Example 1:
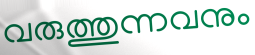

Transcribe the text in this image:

വരുത്തുന്നവനും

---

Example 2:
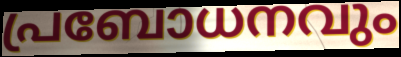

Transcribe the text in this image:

പ്രബോധനവും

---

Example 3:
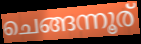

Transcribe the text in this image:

ചെങ്ങന്നൂര്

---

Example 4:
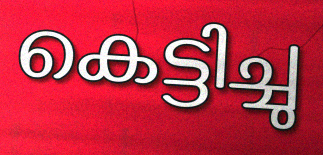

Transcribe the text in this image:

കെട്ടിച്ചു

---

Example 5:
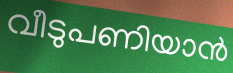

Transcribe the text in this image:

വീടുപണിയാൻ